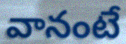
వానంటే